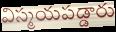
విస్మయపడ్డారు